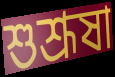
শুশ্রূষা